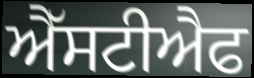
ਐੱਸਟੀਐਫ